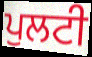
ਪੁਲਟੀ